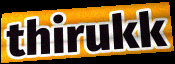
thirukk